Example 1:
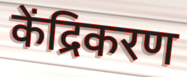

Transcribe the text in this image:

केंद्रिकरण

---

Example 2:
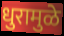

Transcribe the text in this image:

धुरामुळे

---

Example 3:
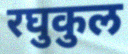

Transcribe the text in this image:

रघुकुल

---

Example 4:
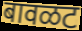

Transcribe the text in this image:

बावळट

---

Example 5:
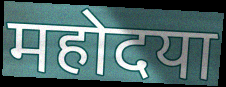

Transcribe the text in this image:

महोदया